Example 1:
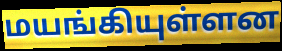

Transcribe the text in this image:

மயங்கியுள்ளன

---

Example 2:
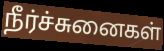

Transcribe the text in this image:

நீர்ச்சுனைகள்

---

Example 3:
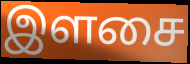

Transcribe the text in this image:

இளசை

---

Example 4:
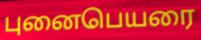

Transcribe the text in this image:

புனைபெயரை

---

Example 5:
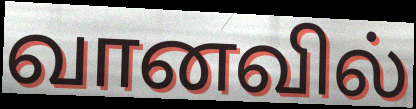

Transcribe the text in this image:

வானவில்